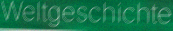
Weltgeschichte